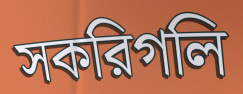
সকরিগলি